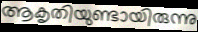
ആകൃതിയുണ്ടായിരുന്നു